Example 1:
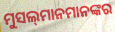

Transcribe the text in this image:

ମୁସଲ୍‌ମାନମାନଙ୍କର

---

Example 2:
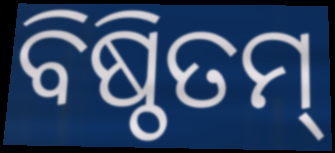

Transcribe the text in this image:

ବିଷ୍ଠିତମ୍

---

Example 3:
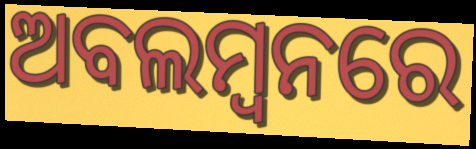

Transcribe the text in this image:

ଅବଲମ୍ବନରେ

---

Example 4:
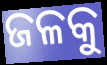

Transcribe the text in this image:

ଜଳକୁ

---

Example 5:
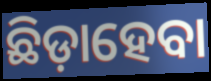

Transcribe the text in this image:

ଛିଡ଼ାହେବା